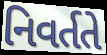
નિવર્તતે